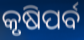
କୃଷିପର୍ବ